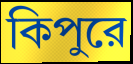
কিপুরে